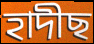
হাদীছ